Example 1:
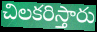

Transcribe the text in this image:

చిలకరిస్తారు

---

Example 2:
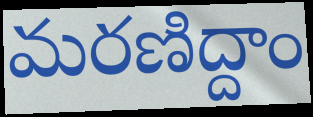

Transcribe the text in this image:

మరణిద్దాం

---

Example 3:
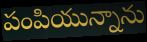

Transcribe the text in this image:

పంపియున్నాను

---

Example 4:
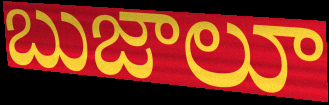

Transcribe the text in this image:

బుజాలూ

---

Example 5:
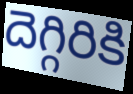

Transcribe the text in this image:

దెగ్గిరికి